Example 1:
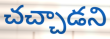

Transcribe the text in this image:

చచ్చాడని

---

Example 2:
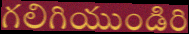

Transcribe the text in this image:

గలిగియుండిరి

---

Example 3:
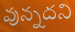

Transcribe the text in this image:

వున్నదని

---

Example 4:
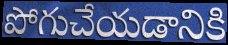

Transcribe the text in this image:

పోగుచేయడానికి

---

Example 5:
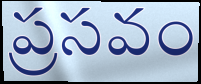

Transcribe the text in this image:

ప్రసవం